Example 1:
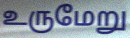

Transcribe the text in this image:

உருமேறு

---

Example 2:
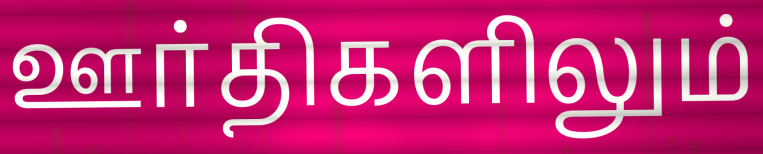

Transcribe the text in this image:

ஊர்திகளிலும்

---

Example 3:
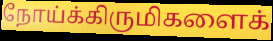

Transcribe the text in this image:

நோய்க்கிருமிகளைக்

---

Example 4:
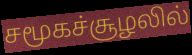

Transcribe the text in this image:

சமூகச்சூழலில்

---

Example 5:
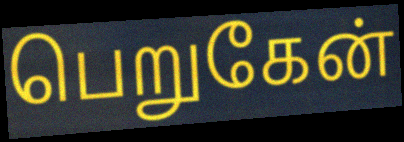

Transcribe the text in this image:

பெறுகேன்